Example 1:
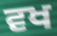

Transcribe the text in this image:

ਵਖ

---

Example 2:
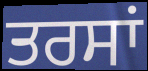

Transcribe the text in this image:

ਤਰਸਾਂ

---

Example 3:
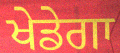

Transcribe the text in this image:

ਖੇਡੇਗਾ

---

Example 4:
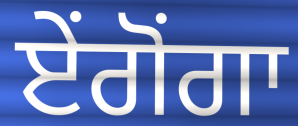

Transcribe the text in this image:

ਏਂਗੋਂਗਾ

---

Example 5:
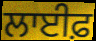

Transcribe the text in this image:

ਲਾਈਫ਼